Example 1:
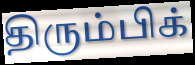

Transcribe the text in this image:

திரும்பிக்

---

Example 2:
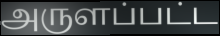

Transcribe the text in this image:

அருளப்பட்ட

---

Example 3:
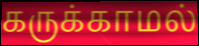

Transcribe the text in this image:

கருக்காமல்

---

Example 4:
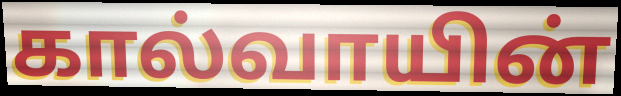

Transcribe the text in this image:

கால்வாயின்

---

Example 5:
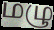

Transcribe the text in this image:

மழு